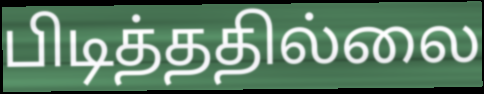
பிடித்ததில்லை